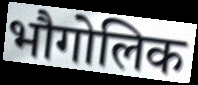
भौगोलिक